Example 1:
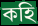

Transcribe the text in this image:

কহি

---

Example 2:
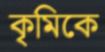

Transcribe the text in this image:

কৃমিকে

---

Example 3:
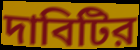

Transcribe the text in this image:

দাবিটির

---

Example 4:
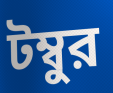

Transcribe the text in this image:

টম্বুর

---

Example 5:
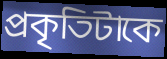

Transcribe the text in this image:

প্রকৃতিটাকে